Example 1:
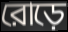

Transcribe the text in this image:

রোড়ে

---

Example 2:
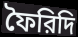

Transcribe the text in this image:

ফৈরিদি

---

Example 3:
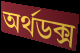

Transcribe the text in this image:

অর্থডক্স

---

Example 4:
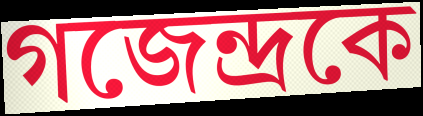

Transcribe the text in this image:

গজেন্দ্রকে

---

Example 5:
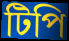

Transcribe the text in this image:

টিপি